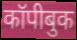
कॉपीबुक